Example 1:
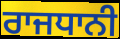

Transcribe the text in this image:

ਰਾਜਧਾਨੀ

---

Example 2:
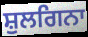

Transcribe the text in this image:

ਸ਼ੁਲਗਿਨਾ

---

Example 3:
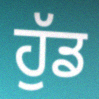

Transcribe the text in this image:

ਹੁੱਡ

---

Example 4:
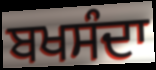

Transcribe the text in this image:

ਬਖਸੰਦਾ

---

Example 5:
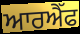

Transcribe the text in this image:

ਆਰਐੱਫ